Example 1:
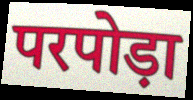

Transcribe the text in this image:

परपोड़ा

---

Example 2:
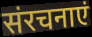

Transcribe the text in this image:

संरचनाएं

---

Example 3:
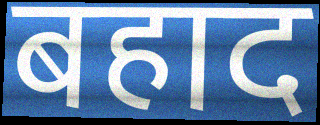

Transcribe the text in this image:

बहाद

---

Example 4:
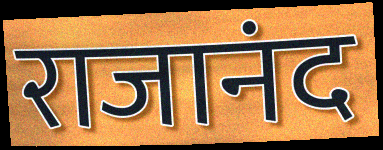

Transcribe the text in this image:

राजानंद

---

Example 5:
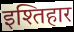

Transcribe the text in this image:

इश्तिहार